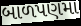
બાળપણમા